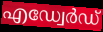
എഡ്വേർഡ്